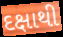
દક્ષાથી